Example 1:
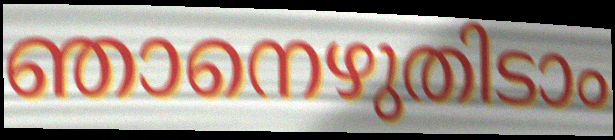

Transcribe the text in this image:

ഞാനെഴുതിടാം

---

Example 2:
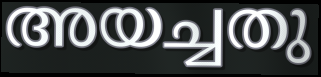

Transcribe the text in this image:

അയച്ചതു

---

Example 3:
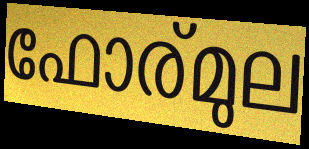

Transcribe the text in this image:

ഫോര്മുല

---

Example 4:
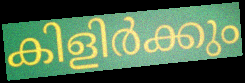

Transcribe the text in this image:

കിളിർക്കും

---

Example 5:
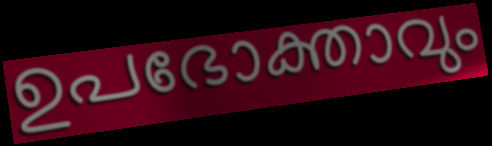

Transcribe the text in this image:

ഉപഭോക്താവും